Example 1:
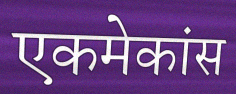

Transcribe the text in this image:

एकमेकांस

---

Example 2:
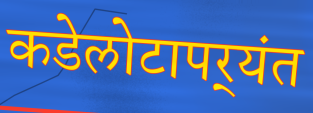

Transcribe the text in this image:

कडेलोटापर्यंत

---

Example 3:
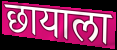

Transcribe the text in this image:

छायाला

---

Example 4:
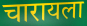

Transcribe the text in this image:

चारायला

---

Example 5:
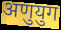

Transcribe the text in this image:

अणुयुग